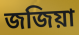
জজিয়া